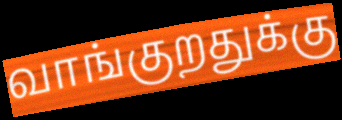
வாங்குறதுக்கு